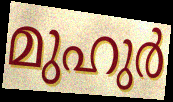
മുഹുർ